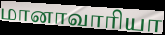
மானாவாரியா